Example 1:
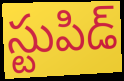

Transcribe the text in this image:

స్టుపిడ్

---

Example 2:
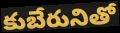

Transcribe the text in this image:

కుబేరునితో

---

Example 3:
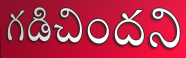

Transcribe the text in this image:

గడిచిందని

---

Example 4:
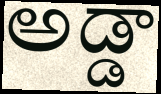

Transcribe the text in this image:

అడ్డా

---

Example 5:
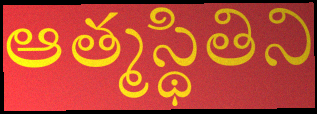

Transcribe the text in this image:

ఆత్మస్థితిని